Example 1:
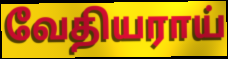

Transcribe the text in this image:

வேதியராய்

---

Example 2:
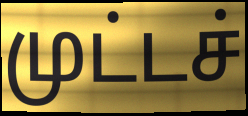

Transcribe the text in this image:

முட்டச்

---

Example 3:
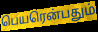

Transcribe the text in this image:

பெயரென்பதும்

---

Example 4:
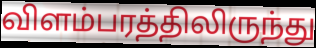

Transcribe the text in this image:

விளம்பரத்திலிருந்து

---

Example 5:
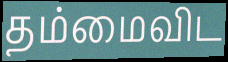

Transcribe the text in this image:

தம்மைவிட